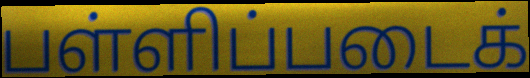
பள்ளிப்படைக்